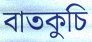
বাতকুচি